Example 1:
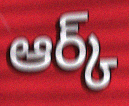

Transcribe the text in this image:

ఆర్క్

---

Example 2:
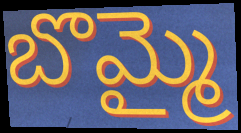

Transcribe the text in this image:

బొమ్మై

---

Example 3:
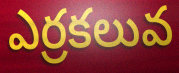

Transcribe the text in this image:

ఎర్రకలువ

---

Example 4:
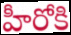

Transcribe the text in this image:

హీరోకి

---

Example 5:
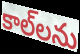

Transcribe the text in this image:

కాల్‌లను